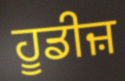
ਹੂਡੀਜ਼